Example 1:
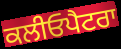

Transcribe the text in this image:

ਕਲੀਓਪੈਟਰਾ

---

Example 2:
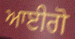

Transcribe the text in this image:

ਆਈਗੋ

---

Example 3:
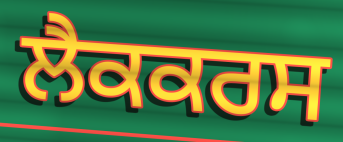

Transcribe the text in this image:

ਲੈਕਕਰਸ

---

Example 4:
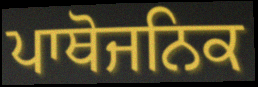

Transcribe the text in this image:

ਪਾਥੋਜਨਿਕ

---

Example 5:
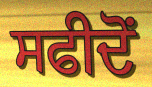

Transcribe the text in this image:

ਸਫੀਦੋਂ